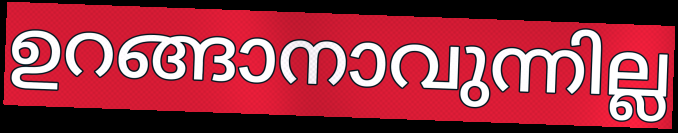
ഉറങ്ങാനാവുന്നില്ല